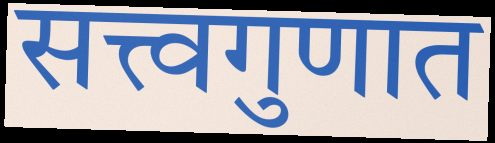
सत्त्वगुणात